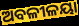
ଅବଳୀଳୟା